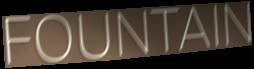
FOUNTAIN